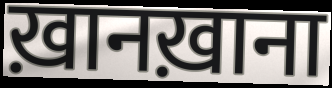
ख़ानख़ाना